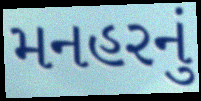
મનહરનું